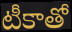
టీకాతో